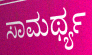
ಸಾಮರ್ಥ್ಯ